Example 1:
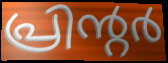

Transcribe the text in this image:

പ്രിന്റർ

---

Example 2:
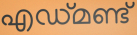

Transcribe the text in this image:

എഡ്മണ്ട്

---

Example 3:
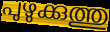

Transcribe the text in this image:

പുഴുക്കുത്തു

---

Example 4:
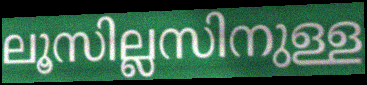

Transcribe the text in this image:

ലൂസില്ലസിനുള്ള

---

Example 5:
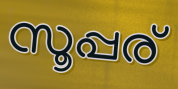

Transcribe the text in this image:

സൂപ്പര്